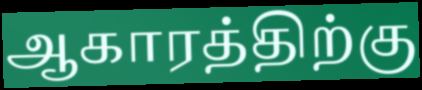
ஆகாரத்திற்கு